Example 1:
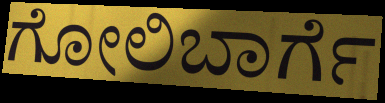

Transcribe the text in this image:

ಗೋಲಿಬಾರ್ಗೆ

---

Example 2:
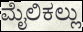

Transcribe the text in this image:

ಮೈಲಿಕಲ್ಲು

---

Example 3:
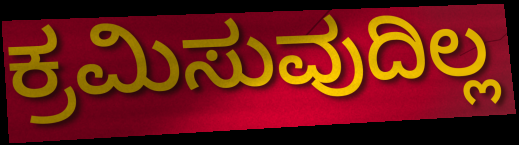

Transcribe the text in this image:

ಕ್ರಮಿಸುವುದಿಲ್ಲ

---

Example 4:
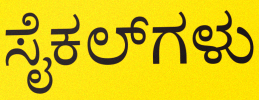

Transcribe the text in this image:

ಸೈಕಲ್‌ಗಳು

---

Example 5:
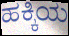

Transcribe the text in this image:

ಹಕ್ಕಿಯ